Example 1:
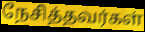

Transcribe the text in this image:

நேசித்தவர்கள்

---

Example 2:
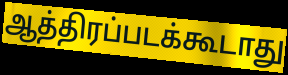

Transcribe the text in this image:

ஆத்திரப்படக்கூடாது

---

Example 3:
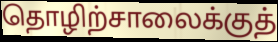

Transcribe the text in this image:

தொழிற்சாலைக்குத்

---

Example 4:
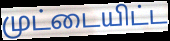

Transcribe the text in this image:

முட்டையிட்ட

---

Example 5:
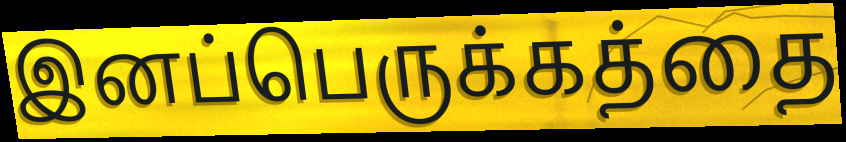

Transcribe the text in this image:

இனப்பெருக்கத்தை